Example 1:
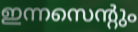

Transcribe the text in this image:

ഇന്നസെന്റും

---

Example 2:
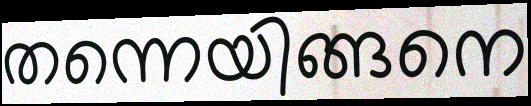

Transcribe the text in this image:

തന്നെയിങ്ങനെ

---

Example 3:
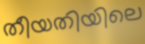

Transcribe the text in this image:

തീയതിയിലെ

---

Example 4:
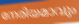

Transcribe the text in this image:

നേരിയമാവും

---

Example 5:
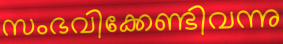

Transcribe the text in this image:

സംഭവിക്കേണ്ടിവന്നു